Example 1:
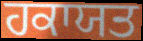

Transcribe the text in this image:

ਹਕਾਯਤ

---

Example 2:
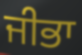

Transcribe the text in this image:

ਜੀਭਾ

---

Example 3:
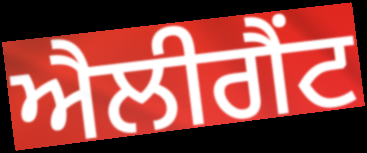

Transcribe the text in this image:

ਐਲੀਗੈਂਟ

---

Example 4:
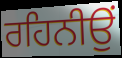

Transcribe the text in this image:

ਰਹਿਨੀਉਂ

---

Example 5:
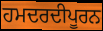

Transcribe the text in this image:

ਹਮਦਰਦੀਪੂਰਨ